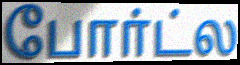
போர்ட்ல